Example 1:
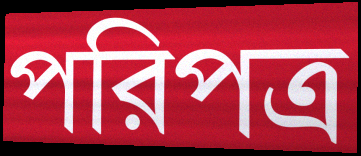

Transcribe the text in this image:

পরিপত্র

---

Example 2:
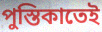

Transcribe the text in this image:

পুস্তিকাতেই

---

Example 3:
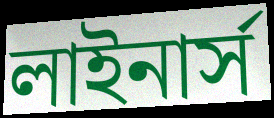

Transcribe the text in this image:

লাইনার্স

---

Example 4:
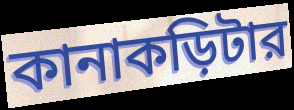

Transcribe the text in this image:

কানাকড়িটার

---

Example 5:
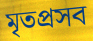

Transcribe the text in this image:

মৃতপ্রসব